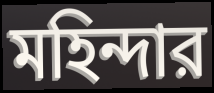
মহিন্দার